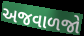
અજવાળજો